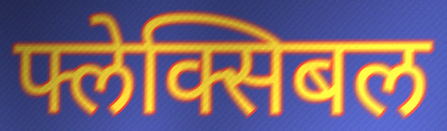
फ्लेक्सिबल